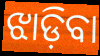
ଝାଡ଼ିବା